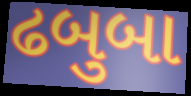
ઢબુબા